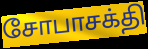
சோபாசக்தி